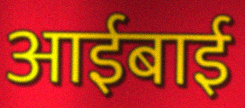
आईबाई